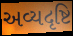
અવ્યદૃષ્ટિ